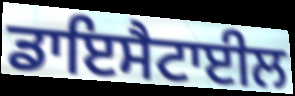
ਡਾਇਸੈਟਾਈਲ